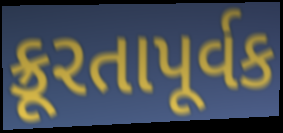
ક્રૂરતાપૂર્વક